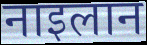
नाइलान